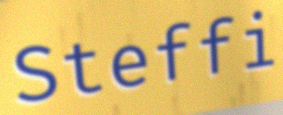
Steffi